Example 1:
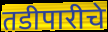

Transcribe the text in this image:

तडीपारीचे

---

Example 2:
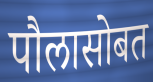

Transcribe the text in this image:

पौलासोबत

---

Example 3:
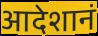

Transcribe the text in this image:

आदेशानं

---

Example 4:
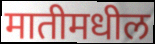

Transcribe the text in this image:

मातीमधील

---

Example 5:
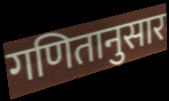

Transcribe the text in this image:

गणितानुसार